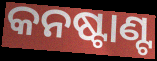
କନଷ୍ଟାଣ୍ଟ